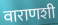
वाराणशी